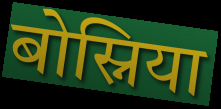
बोस्निया